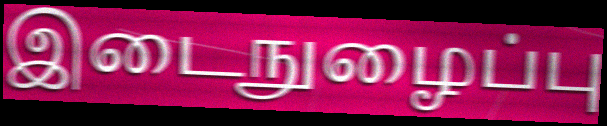
இடைநுழைப்பு